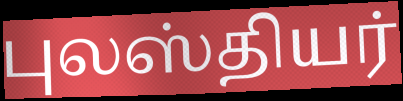
புலஸ்தியர்